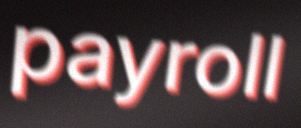
payroll